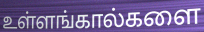
உள்ளங்கால்களை